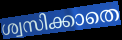
ശ്വസിക്കാതെ